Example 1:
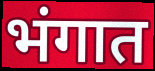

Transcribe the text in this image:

भंगात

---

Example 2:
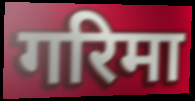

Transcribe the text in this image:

गरिमा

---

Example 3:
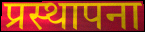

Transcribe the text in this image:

प्रस्थापना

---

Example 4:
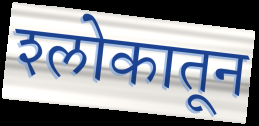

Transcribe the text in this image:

श्लोकातून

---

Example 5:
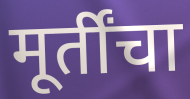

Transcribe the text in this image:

मूर्तींचा